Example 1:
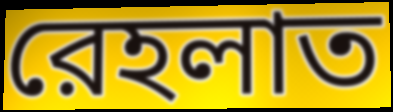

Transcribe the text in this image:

রেহলাত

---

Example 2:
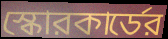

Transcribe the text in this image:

স্কোরকার্ডের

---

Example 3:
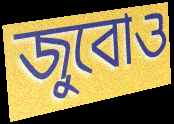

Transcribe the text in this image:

জুবোও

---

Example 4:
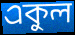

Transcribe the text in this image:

একুল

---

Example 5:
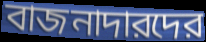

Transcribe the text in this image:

বাজনাদারদের